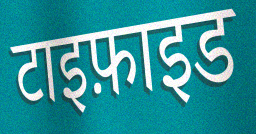
टाइफ़ाइड